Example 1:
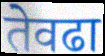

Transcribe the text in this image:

तेवढा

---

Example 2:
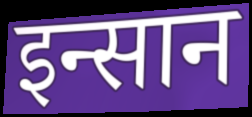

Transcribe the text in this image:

इन्सान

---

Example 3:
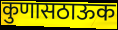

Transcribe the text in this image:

कुणासठाऊक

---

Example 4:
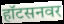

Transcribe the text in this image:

हॉटसनवर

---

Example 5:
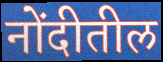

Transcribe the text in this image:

नोंदीतील